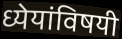
ध्येयांविषयी